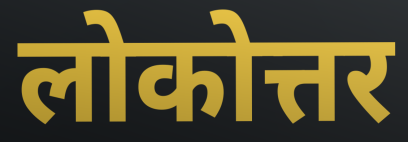
लोकोत्तर